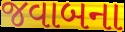
જવાબના